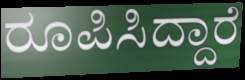
ರೂಪಿಸಿದ್ದಾರೆ